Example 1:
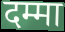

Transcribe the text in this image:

दम्मा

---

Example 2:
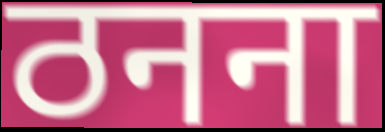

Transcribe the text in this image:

ठनना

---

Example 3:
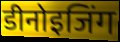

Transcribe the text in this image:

डीनोइजिंग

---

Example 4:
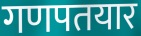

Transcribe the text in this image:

गणपतयार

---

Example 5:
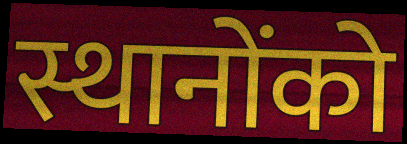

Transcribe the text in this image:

स्थानोंको